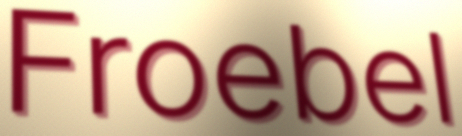
Froebel